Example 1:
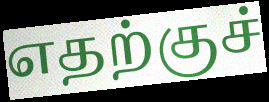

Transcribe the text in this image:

எதற்குச்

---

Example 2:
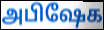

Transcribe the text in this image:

அபிஷேக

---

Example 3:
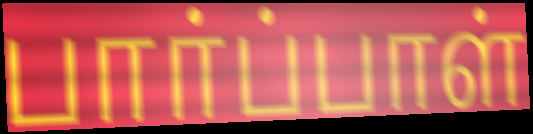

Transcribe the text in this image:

பார்ப்பாள்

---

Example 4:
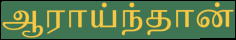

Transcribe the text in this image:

ஆராய்ந்தான்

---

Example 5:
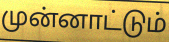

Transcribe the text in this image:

முன்னாட்டும்